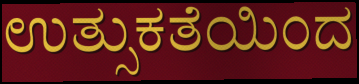
ಉತ್ಸುಕತೆಯಿಂದ